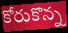
కోరుకొన్న